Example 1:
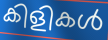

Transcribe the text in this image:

കിളികൾ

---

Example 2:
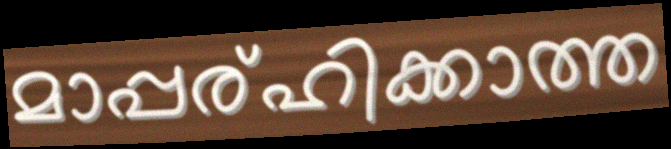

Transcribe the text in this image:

മാപ്പര്ഹിക്കാത്ത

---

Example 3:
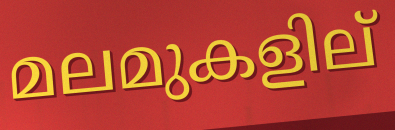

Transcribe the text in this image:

മലമുകളില്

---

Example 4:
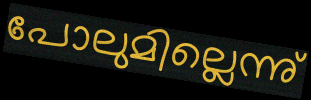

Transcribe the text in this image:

പോലുമില്ലെന്നു്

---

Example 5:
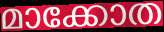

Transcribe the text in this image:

മാക്കോത